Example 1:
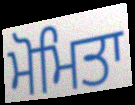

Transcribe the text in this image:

ਮੋਮਿਤਾ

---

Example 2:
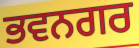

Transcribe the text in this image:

ਭਵਨਗਰ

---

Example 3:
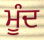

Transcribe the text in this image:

ਮੂੰਦ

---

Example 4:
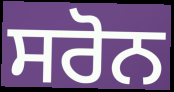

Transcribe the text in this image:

ਸਰੋਨ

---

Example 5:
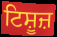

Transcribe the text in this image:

ਟਿਸ਼ੂਜ਼